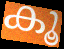
കൂ